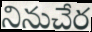
నినుచేర